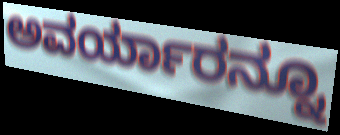
ಅವರ್ಯಾರನ್ನೂ